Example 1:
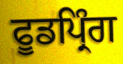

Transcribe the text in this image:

ਫੂਡਪ੍ਰਿੰਗ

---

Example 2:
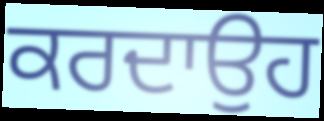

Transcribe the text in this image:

ਕਰਦਾਉਹ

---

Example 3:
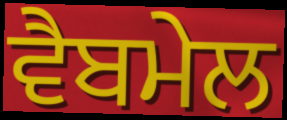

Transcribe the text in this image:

ਵੈਬਮੇਲ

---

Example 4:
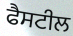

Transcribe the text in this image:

ਫੈਸਟੀਲ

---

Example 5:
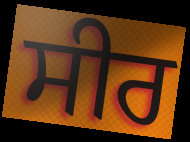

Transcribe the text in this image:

ਸੀਰ